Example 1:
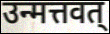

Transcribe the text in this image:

उन्मत्तवत्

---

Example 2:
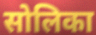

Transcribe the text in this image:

सोलिका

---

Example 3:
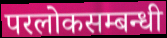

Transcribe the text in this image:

परलोकसम्बन्धी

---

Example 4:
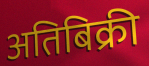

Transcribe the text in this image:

अतिबिक्री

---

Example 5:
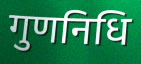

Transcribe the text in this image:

गुणनिधि